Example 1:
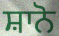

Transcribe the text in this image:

ਸ਼ਾਨੋ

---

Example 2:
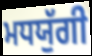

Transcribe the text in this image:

ਮਧਯੁੱਗੀ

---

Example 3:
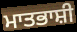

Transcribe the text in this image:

ਮਾਤਭਾਸ਼ੀ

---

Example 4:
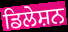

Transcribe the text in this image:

ਡਿਲੇਸ਼ਨ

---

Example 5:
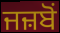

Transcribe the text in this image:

ਜਜ਼ਬੋਂ